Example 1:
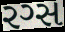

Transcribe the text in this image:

રગ્સ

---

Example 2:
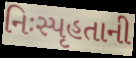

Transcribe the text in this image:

નિઃસ્પૃહતાની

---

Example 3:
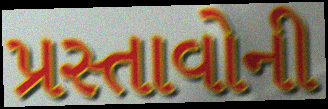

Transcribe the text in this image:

પ્રસ્તાવોની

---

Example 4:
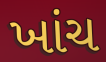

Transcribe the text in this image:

ખાંચ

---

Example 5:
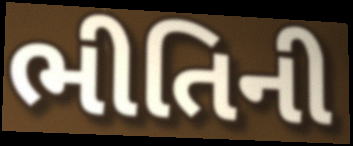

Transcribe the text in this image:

ભીતિની